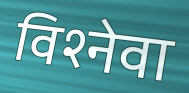
विश्नेवा